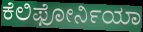
ಕೆಲಿಫೋರ್ನಿಯಾ